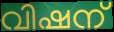
വിഷന്